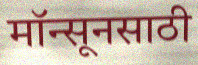
मॉन्सूनसाठी